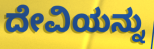
ದೇವಿಯನ್ನು